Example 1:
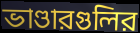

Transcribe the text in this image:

ভাণ্ডারগুলির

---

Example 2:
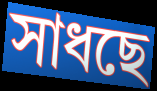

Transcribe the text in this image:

সাধছে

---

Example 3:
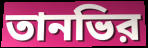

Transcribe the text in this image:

তানভির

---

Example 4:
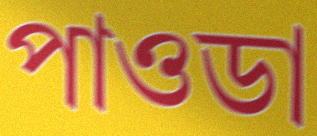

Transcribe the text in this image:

পাওডা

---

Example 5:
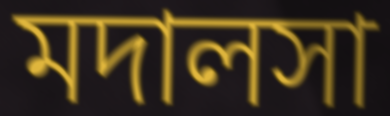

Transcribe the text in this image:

মদালসা